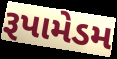
રૂપામેડમ